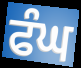
ਫੰਘ